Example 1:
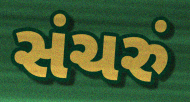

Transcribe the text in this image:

સંચરું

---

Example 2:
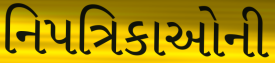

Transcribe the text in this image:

નિપત્રિકાઓની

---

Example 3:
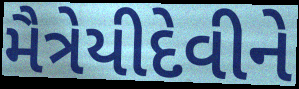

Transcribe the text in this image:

મૈત્રેયીદેવીને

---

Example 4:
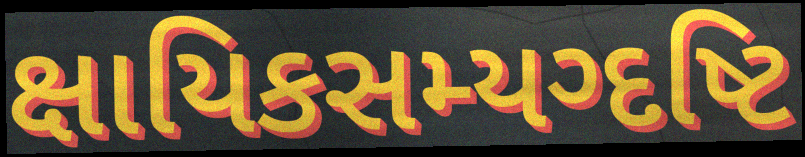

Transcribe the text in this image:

ક્ષાયિકસમ્યગ્દષ્ટિ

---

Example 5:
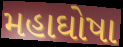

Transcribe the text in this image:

મહાઘોષા